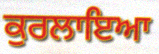
ਕੁਰਲਾਇਆ